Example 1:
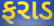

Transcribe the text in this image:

ફરાડ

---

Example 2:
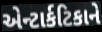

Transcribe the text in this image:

એન્ટાર્કટિકાને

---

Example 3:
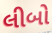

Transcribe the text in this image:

લીબો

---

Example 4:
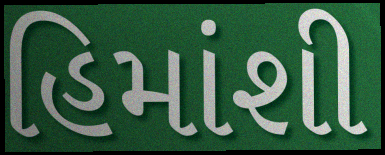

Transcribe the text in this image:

હિમાંશી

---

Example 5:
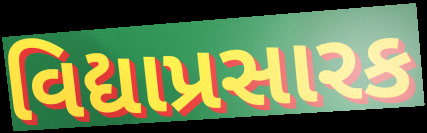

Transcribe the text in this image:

વિદ્યાપ્રસારક